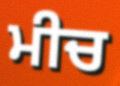
ਮੀਚ